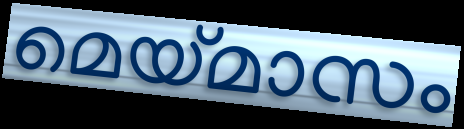
മെയ്മാസം